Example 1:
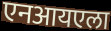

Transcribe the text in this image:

एनआयएला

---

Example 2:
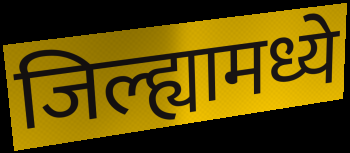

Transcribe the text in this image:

जिल्ह्यामध्ये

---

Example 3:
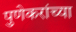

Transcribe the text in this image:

पुणेकरांच्या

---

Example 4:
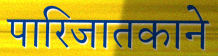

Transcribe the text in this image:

पारिजातकाने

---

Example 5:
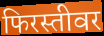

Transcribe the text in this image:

फिरस्तीवर